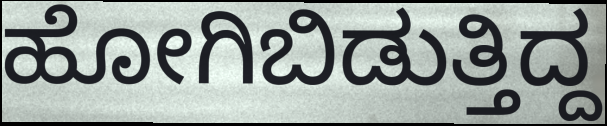
ಹೋಗಿಬಿಡುತ್ತಿದ್ದ